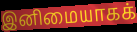
இனிமையாகக்